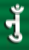
નુઁ